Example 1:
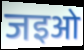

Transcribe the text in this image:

जइओ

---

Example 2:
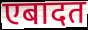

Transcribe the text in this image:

एबादत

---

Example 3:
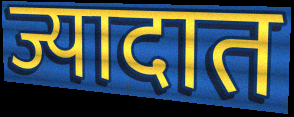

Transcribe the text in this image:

ज्यादात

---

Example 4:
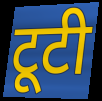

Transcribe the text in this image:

टूटी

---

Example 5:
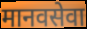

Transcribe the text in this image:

मानवसेवा